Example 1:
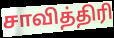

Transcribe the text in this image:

சாவித்திரி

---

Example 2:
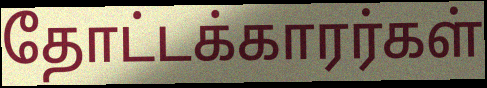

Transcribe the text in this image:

தோட்டக்காரர்கள்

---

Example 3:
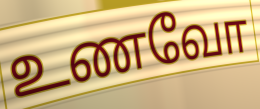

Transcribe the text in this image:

உணவோ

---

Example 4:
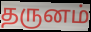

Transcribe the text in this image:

தருனம்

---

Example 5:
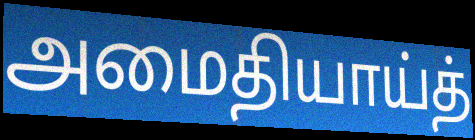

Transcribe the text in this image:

அமைதியாய்த்